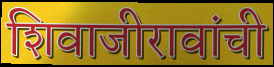
शिवाजीरावांची